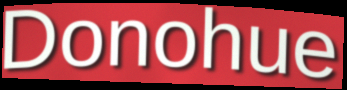
Donohue